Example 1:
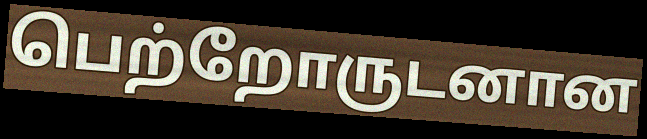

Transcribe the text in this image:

பெற்றோருடனான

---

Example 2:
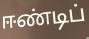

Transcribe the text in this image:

ஈண்டிப்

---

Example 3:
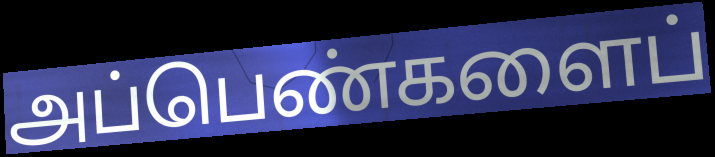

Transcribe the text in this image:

அப்பெண்களைப்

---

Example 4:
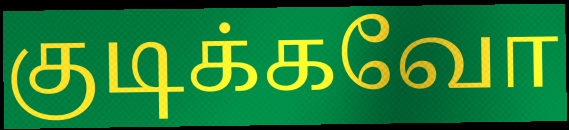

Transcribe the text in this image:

குடிக்கவோ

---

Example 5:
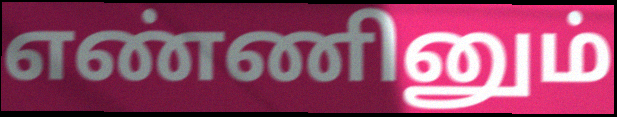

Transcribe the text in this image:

எண்ணினும்